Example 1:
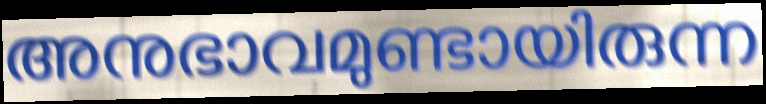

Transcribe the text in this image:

അനുഭാവമുണ്ടായിരുന്ന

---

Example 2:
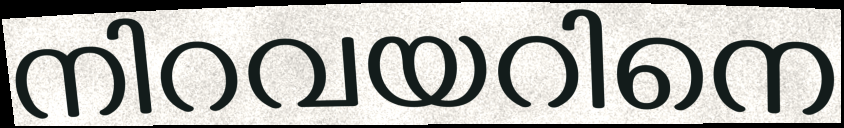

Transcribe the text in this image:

നിറവയറിനെ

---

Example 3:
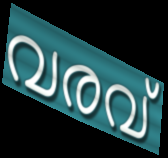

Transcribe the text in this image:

വരവ്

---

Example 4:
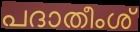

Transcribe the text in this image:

പദാതീംശ്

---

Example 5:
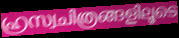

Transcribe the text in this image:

ഹ്രസ്വചിത്രങ്ങളിലൂടെ